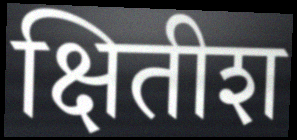
क्षितीश